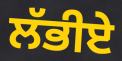
ਲੱਭੀਏ